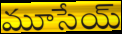
మూసేయ్